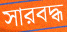
সারবদ্ধ